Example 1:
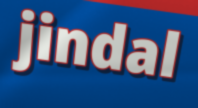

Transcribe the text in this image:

jindal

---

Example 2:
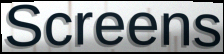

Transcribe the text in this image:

Screens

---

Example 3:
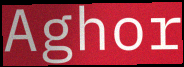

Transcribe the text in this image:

Aghor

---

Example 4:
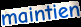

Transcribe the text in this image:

maintien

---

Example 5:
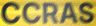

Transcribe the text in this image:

CCRAS